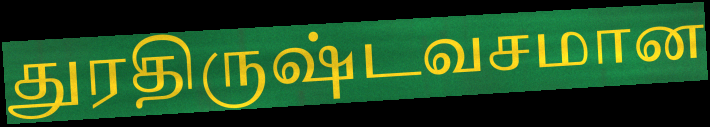
துரதிருஷ்டவசமான